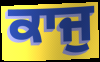
ਕਾਜੁ